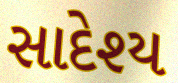
સાદેશ્ય